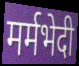
मर्मभेदी